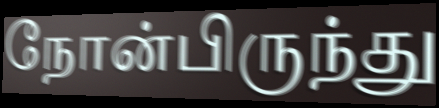
நோன்பிருந்து